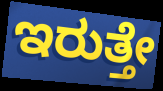
ಇರುತ್ತೇ